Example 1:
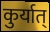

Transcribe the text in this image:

कुर्यात्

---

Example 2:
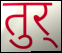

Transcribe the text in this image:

तुर्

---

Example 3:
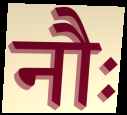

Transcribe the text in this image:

नौः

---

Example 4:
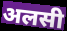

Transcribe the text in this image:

अलसी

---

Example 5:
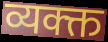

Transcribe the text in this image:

व्यक्क्त